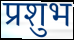
प्रशुभ